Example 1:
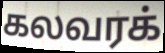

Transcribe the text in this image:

கலவரக்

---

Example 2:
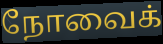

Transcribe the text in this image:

நோவைக்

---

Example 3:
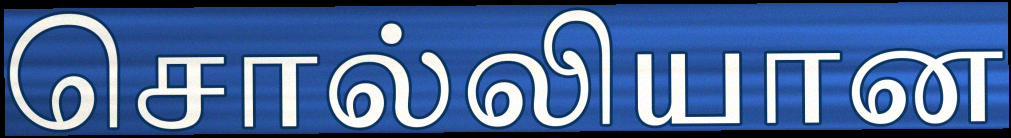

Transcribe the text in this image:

சொல்லியான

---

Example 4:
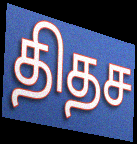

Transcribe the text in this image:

திதச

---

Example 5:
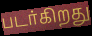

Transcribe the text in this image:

படர்கிறது